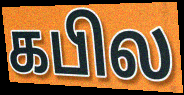
கபில